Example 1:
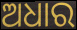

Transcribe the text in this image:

ଅଧାର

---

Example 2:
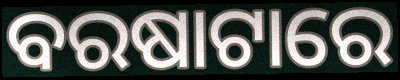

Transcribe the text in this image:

ବରଷାଟାରେ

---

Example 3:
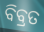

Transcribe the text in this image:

ବିବ୍ରତ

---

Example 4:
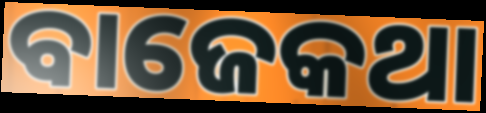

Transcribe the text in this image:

ବାଜେକଥା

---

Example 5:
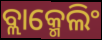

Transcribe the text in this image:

ବ୍ଲାକ୍ମେଲିଂ